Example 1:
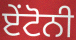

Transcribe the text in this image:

ਏਂਟੋਨੀ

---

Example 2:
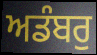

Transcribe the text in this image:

ਅਡੰਬਰੁ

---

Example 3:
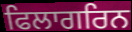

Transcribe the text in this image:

ਫਿਲਾਗਰਿਨ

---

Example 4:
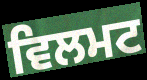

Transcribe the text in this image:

ਵਿਲਮਟ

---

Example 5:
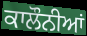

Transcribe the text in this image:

ਕਾਲੌਨੀਆਂ